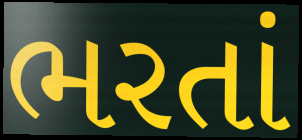
ભરતાં